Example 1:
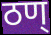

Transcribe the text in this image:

ठण्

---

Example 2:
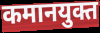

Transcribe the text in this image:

कमानयुक्त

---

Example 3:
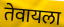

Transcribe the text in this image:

तेवायला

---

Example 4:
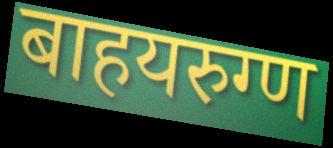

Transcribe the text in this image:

बाहयरुग्ण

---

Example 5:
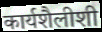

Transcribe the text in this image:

कार्यशैलीशी